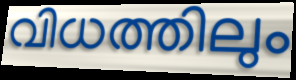
വിധത്തിലും